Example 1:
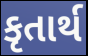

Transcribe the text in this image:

કૃતાર્થ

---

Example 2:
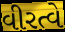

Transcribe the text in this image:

વીરત્વે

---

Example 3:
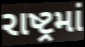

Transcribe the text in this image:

રાષ્ટ્રમાં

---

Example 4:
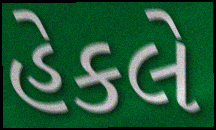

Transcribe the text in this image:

હેકલે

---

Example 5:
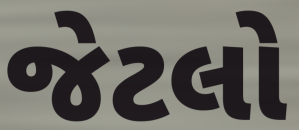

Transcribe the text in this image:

જેટલો